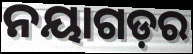
ନୟାଗଡ଼ର